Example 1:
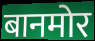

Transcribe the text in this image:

बानमोर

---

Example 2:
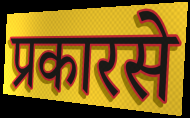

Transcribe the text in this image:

प्रकारसे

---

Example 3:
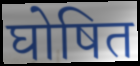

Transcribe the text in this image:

घोषित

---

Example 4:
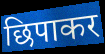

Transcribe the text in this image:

छिपाकर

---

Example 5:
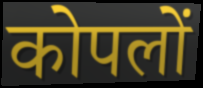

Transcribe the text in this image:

कोपलों